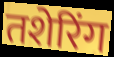
तशेरिंग